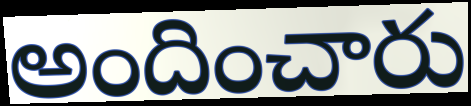
అందించారు